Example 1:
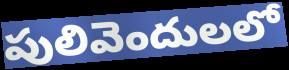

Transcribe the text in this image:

పులివెందులలో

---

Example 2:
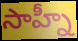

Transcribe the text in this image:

సాహ్నీ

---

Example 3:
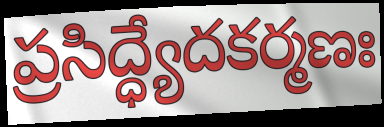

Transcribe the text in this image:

ప్రసిద్ధ్యేదకర్మణః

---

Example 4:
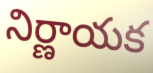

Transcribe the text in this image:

నిర్ణాయక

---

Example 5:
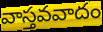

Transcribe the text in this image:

వాస్తవవాదం